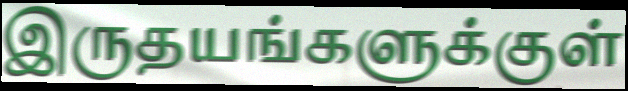
இருதயங்களுக்குள்